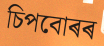
চিপবোৰৰ